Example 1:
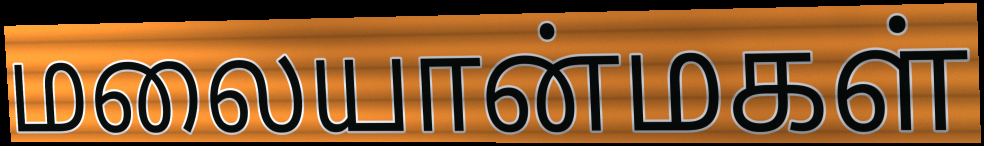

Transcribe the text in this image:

மலையான்மகள்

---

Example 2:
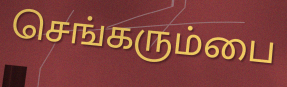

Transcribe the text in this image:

செங்கரும்பை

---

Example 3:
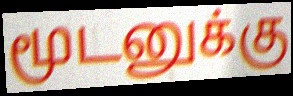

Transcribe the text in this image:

மூடனுக்கு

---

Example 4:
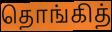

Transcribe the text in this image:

தொங்கித்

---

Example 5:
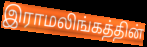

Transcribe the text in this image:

இராமலிங்கத்தின்